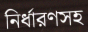
নির্ধারণসহ